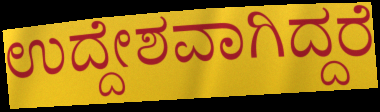
ಉದ್ದೇಶವಾಗಿದ್ದರೆ